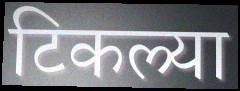
टिकल्या